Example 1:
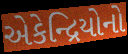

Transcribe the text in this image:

એકેન્દ્રિયોનો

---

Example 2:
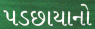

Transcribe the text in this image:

પડછાયાનો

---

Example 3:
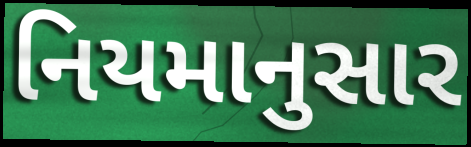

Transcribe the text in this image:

નિયમાનુસાર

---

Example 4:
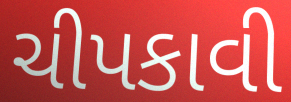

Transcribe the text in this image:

ચીપકાવી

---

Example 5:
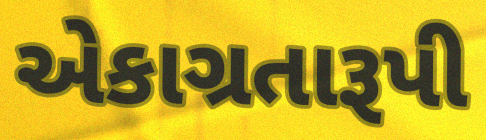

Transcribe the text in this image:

એકાગ્રતારૂપી